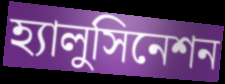
হ্যালুসিনেশন